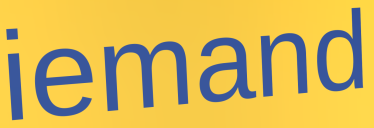
iemand